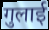
गुलाई